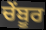
ਚੇਂਬੂਰ